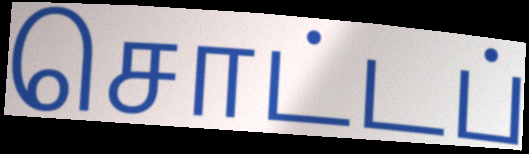
சொட்டப்